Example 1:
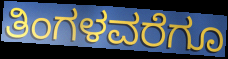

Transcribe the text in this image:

ತಿಂಗಳವರೆಗೂ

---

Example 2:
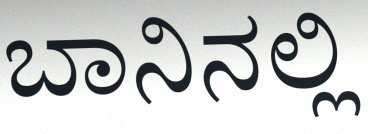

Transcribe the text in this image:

ಬಾನಿನಲ್ಲಿ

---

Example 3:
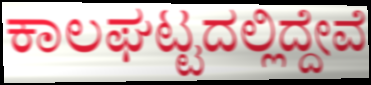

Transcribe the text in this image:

ಕಾಲಘಟ್ಟದಲ್ಲಿದ್ದೇವೆ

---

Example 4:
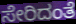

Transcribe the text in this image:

ಸೇರಿದಂತೆ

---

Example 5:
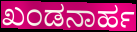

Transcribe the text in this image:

ಖಂಡನಾರ್ಹ